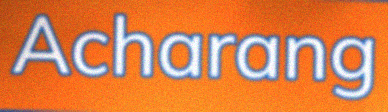
Acharang